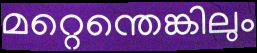
മറ്റെന്തെങ്കിലും